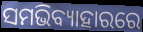
ସମଭିବ୍ୟାହାରରେ